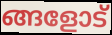
ങ്ങളോട്